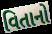
વિતાનો